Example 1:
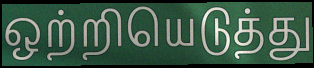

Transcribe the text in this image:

ஒற்றியெடுத்து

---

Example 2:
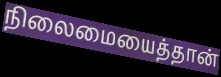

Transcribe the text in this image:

நிலைமையைத்தான்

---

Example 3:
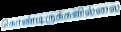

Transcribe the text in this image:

கொண்டிருக்கவில்லை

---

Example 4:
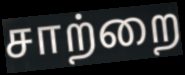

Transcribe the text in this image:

சாற்றை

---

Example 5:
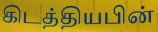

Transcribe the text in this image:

கிடத்தியபின்